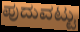
ಪುದುವಟ್ಟು